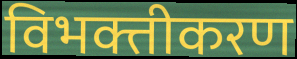
विभक्तीकरण